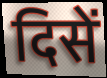
दिसें